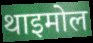
थाइमोल